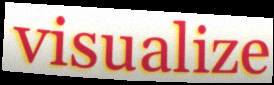
visualize